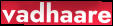
vadhaare